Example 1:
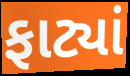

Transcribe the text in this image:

ફાટ્યાં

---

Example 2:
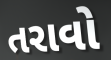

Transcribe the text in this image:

તરાવો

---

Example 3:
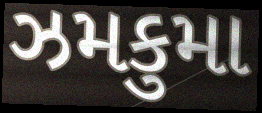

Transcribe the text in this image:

ઝમકુમા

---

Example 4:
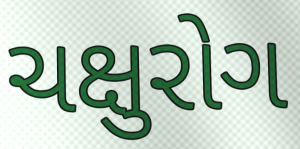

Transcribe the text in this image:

ચક્ષુરોગ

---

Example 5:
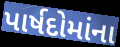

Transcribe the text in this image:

પાર્ષદોમાંના